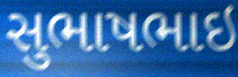
સુભાષભાઇ